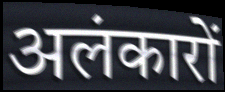
अलंकारों